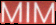
MIM